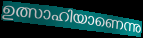
ഉത്സാഹിയാണെന്നു